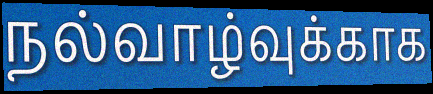
நல்வாழ்வுக்காக